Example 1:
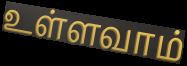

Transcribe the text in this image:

உள்ளவாம்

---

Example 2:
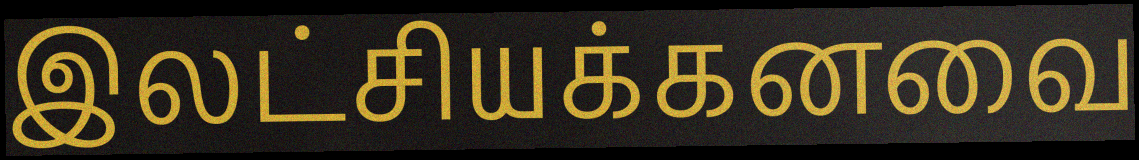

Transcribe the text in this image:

இலட்சியக்கனவை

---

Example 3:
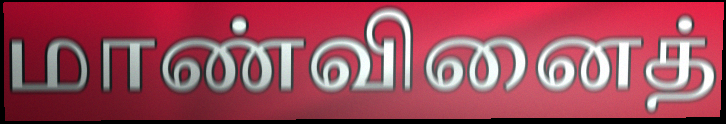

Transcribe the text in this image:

மாண்வினைத்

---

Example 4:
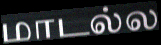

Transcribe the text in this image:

மாடல்ல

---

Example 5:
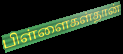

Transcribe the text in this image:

பிள்ளைகள்தான்